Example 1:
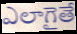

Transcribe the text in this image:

ఎలాగైతే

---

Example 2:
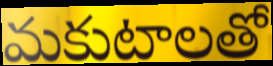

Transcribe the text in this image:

మకుటాలతో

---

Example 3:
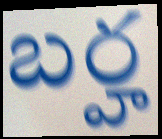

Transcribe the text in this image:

బర్హ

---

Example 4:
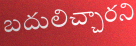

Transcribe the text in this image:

బదులిచ్చారని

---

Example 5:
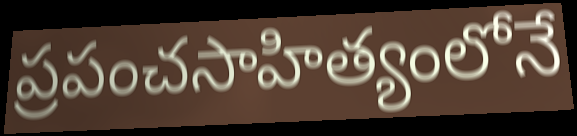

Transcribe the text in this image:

ప్రపంచసాహిత్యంలోనే